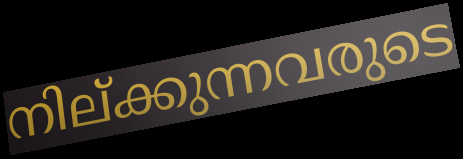
നില്ക്കുന്നവരുടെ